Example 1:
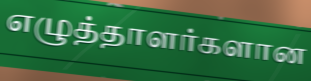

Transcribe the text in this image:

எழுத்தாளர்களான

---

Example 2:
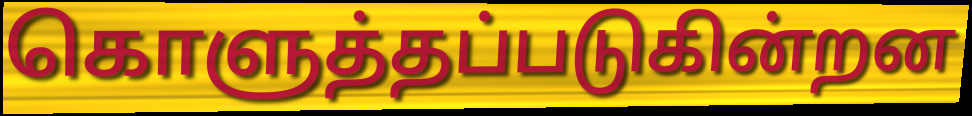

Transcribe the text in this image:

கொளுத்தப்படுகின்றன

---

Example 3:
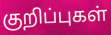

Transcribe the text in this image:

குறிப்புகள்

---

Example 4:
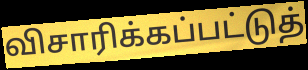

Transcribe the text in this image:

விசாரிக்கப்பட்டுத்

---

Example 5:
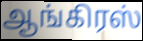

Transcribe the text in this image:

ஆங்கிரஸ்